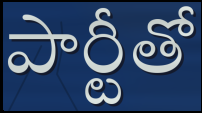
పార్టీతో